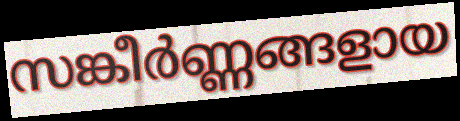
സങ്കീർണ്ണങ്ങളായ